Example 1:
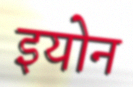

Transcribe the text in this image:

इयोन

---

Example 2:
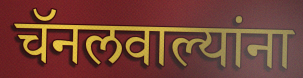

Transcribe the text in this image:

चॅनलवाल्यांना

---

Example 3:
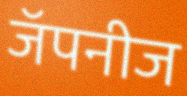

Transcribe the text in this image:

जॅपनीज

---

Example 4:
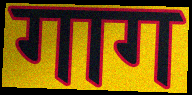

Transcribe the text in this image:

गाग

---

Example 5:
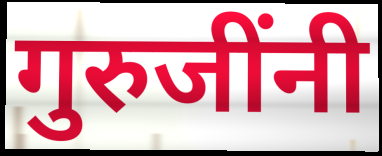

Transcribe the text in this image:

गुरुजींनी